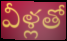
వీళ్లతో